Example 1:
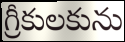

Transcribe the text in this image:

గ్రీకులకును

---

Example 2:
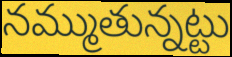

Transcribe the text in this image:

నమ్ముతున్నట్టు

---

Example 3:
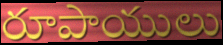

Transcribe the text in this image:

రూపాయులు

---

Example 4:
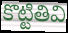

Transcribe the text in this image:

కొట్టితివి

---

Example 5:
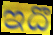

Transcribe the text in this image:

ఇదొ